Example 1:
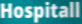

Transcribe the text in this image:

Hospitall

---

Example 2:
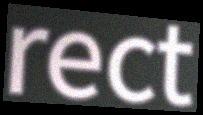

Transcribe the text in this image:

rect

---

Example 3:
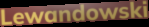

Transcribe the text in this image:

Lewandowski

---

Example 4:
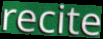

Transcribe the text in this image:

recite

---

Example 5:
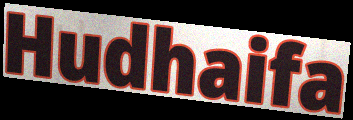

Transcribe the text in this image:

Hudhaifa